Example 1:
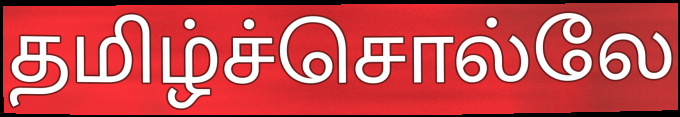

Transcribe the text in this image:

தமிழ்ச்சொல்லே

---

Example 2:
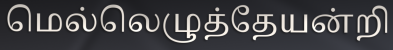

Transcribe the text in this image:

மெல்லெழுத்தேயன்றி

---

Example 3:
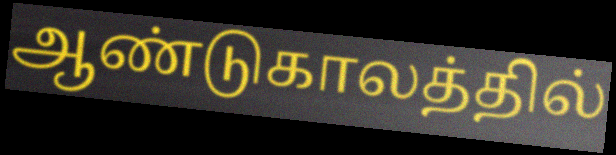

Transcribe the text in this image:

ஆண்டுகாலத்தில்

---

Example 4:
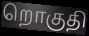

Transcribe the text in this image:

றொகுதி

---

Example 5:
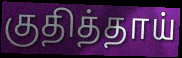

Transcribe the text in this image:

குதித்தாய்